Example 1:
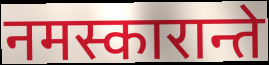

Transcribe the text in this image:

नमस्कारान्ते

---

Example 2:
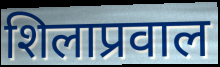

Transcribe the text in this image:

शिलाप्रवाल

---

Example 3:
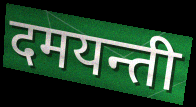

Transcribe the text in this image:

दमयन्ती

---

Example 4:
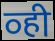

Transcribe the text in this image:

व्‍ही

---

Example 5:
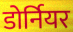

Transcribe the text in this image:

डोर्नियर